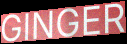
GINGER